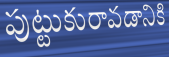
పుట్టుకురావడానికి